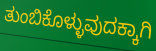
ತುಂಬಿಕೊಳ್ಳುವುದಕ್ಕಾಗಿ